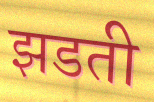
झडती